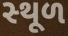
સ્‍થૂળ